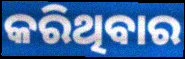
କରିଥିବାର